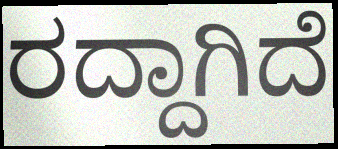
ರದ್ದಾಗಿದೆ